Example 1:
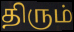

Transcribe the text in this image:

திரும்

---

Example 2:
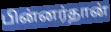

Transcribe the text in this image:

பின்னர்தான்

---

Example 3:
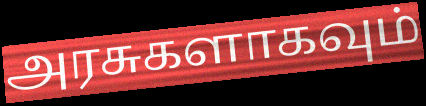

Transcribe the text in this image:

அரசுகளாகவும்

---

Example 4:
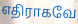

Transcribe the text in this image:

எதிராகவே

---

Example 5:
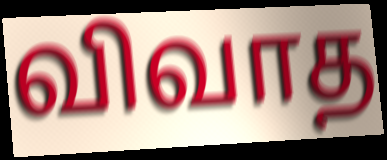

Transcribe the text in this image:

விவாத